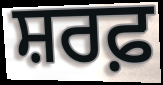
ਸ਼ਰਫ਼